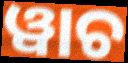
ୱାଚ